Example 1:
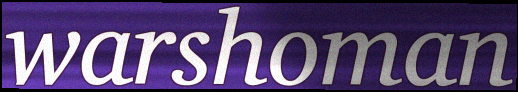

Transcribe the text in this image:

warshoman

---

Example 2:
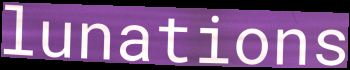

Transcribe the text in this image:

lunations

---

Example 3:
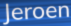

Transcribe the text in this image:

Jeroen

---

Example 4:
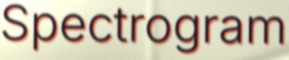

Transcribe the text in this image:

Spectrogram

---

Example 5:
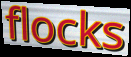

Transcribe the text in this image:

flocks